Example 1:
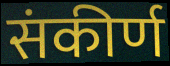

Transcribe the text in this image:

संकीर्ण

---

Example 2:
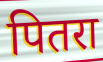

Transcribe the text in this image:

पितरा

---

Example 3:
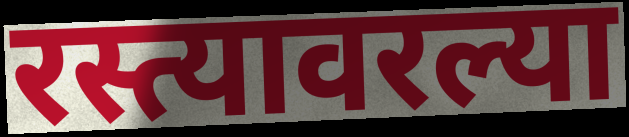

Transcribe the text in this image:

रस्त्यावरल्या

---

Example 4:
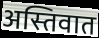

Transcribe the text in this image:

अस्तिवात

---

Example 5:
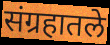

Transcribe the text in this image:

संग्रहातले